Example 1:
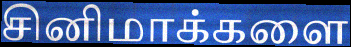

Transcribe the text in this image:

சினிமாக்களை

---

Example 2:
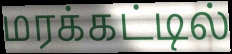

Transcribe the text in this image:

மரக்கட்டில்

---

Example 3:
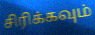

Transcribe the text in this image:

சிரிக்கவும்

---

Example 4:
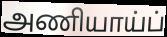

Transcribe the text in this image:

அணியாய்ப்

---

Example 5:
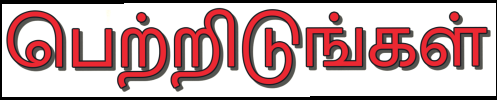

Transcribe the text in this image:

பெற்றிடுங்கள்